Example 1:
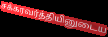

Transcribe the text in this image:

சக்கரவர்த்தியினுடைய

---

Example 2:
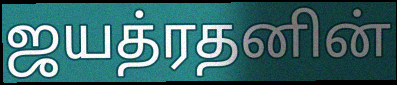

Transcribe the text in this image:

ஜயத்ரதனின்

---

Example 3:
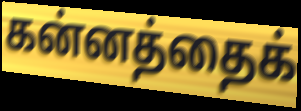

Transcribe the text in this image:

கன்னத்தைக்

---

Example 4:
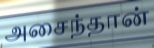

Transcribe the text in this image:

அசைந்தான்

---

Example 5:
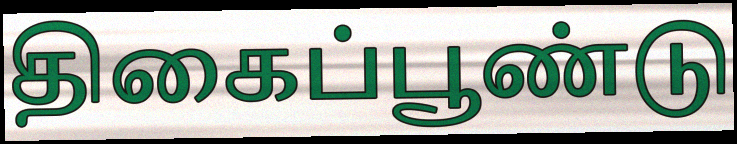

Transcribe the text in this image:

திகைப்பூண்டு